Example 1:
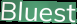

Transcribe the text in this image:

Bluest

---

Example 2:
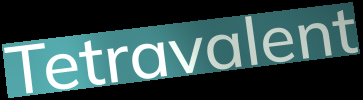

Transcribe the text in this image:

Tetravalent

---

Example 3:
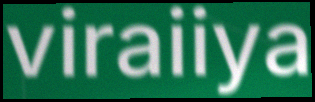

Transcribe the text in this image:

viraiiya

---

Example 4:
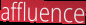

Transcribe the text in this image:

affluence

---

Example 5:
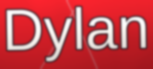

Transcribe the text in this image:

Dylan